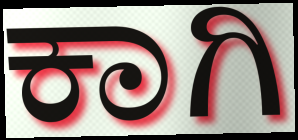
ಕಾಗಿ